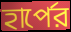
হার্পের